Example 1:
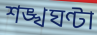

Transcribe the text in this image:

শঙ্খঘণ্টা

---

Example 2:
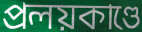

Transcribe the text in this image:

প্রলয়কাণ্ডে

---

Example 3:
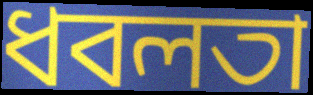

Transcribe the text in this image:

ধবলতা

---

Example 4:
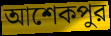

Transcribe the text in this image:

আশেকপুর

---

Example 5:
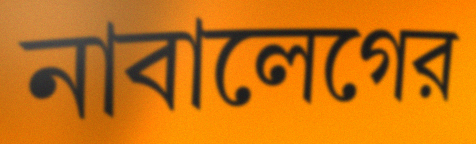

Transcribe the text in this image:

নাবালেগের